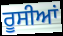
ਰੂਸੀਆਂ